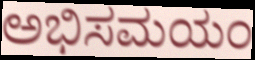
ಅಭಿಸಮಯಂ